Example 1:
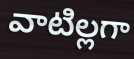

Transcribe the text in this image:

వాటిల్లగా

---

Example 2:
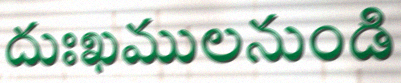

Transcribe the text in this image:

దుఃఖములనుండి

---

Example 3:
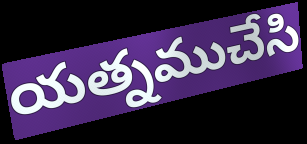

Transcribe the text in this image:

యత్నముచేసి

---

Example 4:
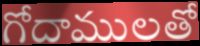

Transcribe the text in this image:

గోదాములతో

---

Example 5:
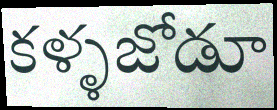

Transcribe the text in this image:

కళ్ళజోడూ